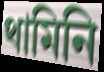
থামিনি